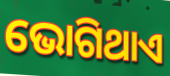
ଭୋଗିଥାଏ